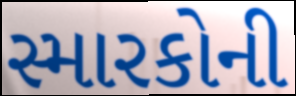
સ્મારકોની